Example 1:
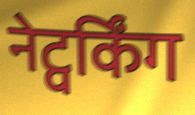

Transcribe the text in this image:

नेट्वर्किंग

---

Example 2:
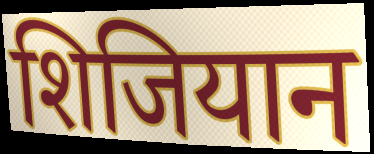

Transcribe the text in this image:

शिजियान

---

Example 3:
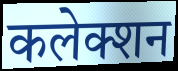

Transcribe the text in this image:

कलेक्शन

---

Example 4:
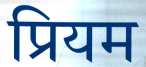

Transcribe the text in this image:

प्रियम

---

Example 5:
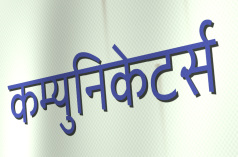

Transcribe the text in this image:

कम्युनिकेटर्स